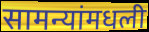
सामन्यांमधली